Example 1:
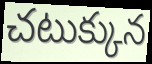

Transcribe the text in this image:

చటుక్కున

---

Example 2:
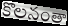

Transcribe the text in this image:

కొలనంతా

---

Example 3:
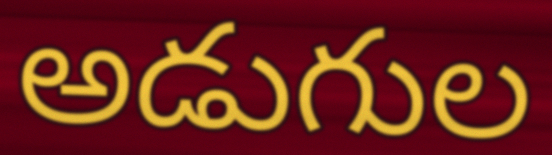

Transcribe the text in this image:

అడుగుల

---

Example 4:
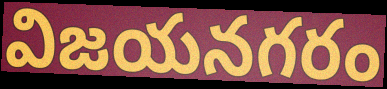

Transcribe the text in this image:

విజయనగరం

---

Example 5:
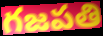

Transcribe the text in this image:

గజపతి